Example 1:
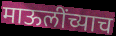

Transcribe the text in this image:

माऊलींच्याच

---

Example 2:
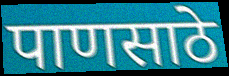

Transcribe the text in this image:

पाणसाठे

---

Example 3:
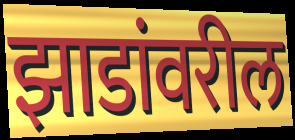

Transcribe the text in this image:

झाडांवरील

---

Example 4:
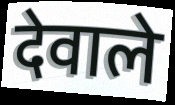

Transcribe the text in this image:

देवाले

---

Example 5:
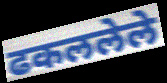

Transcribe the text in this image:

ढकललेले